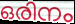
ഒരിനം